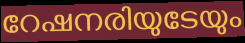
റേഷനരിയുടേയും